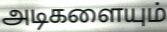
அடிகளையும்